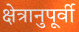
क्षेत्रानुपूर्वी